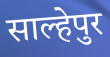
साल्हेपुर